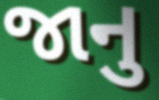
જાનુ